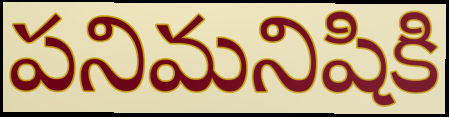
పనిమనిషికి